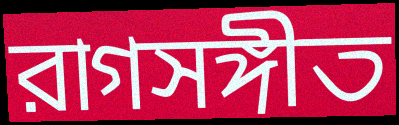
রাগসঙ্গীত